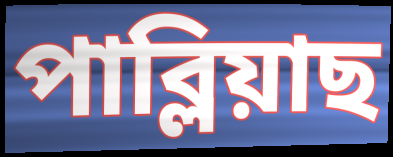
পাব্লিয়াছ